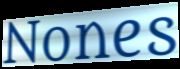
Nones